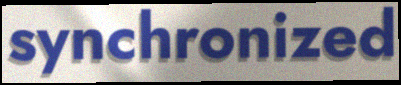
synchronized